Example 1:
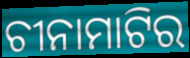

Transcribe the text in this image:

ଚୀନାମାଟିର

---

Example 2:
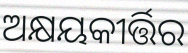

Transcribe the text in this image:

ଅକ୍ଷୟକୀର୍ତ୍ତିର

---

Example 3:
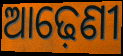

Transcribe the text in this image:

ଆଢ଼େଣୀ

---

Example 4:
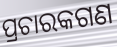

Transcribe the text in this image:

ପ୍ରଚାରକଗଣ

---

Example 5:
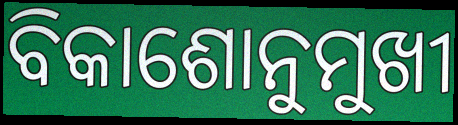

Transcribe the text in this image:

ବିକାଶୋନୁମୁଖୀ